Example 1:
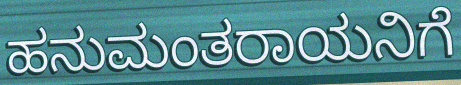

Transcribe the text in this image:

ಹನುಮಂತರಾಯನಿಗೆ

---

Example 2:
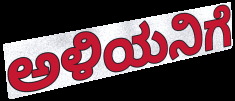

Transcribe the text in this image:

ಅಳಿಯನಿಗೆ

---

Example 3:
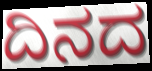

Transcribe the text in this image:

ದಿನದ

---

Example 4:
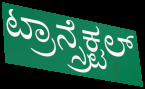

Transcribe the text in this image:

ಟ್ರಾನ್ಸ್ರೆಕ್ಟಲ್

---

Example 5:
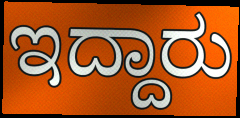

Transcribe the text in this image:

ಇದ್ದಾರು